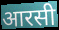
आरसी